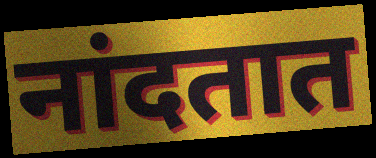
नांदतात